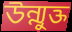
উন্মুক্ত